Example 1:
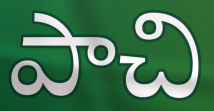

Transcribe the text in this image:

పాచి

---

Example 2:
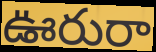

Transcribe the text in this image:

ఊరురా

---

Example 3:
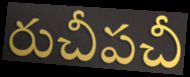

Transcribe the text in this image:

రుచీపచీ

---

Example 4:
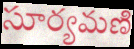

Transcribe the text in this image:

సూర్యమణి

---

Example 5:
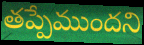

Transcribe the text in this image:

తప్పేముందని